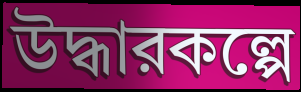
উদ্ধারকল্পে